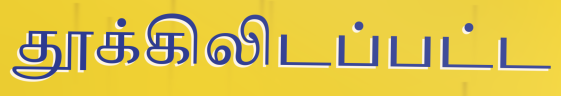
தூக்கிலிடப்பட்ட